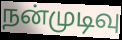
நன்முடிவு